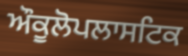
ਔਕੂਲੋਪਲਾਸਟਿਕ